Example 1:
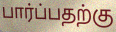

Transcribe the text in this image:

பார்ப்பதற்கு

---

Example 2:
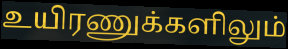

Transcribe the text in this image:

உயிரணுக்களிலும்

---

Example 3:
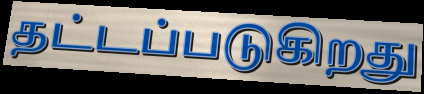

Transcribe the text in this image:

தட்டப்படுகிறது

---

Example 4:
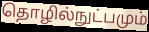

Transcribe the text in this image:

தொழில்நுட்பமும்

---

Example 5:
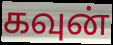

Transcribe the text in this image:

கவுன்